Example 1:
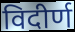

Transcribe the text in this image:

विदीर्ण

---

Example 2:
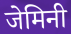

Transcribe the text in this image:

जेमिनी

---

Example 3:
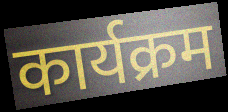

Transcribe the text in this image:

कार्यक्रम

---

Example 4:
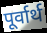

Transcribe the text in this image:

पूर्वार्थ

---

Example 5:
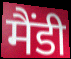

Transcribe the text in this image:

मैंडी